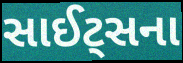
સાઈટ્સના